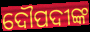
ଦୌପଦୀଙ୍କ